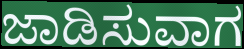
ಜಾಡಿಸುವಾಗ